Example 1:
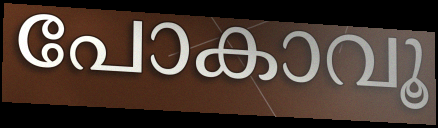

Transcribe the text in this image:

പോകാവൂ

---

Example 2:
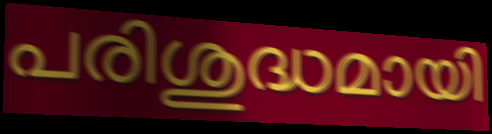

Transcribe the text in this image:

പരിശുദ്ധമായി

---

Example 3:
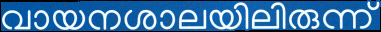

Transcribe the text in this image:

വായനശാലയിലിരുന്ന്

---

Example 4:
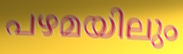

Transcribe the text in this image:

പഴമയിലും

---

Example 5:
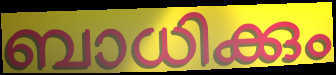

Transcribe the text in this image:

ബാധിക്കും